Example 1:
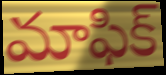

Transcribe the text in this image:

మాఫిక్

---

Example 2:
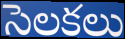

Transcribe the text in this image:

సెలకలు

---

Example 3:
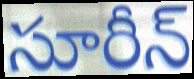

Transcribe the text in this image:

సూరీన్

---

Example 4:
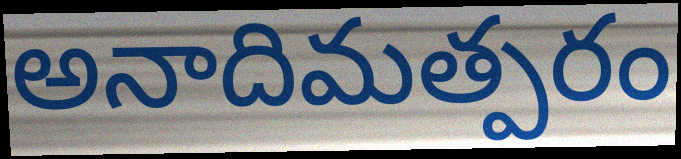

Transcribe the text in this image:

అనాదిమత్పరం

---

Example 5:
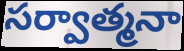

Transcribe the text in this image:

సర్వాత్మనా